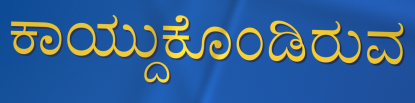
ಕಾಯ್ದುಕೊಂಡಿರುವ